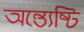
অন্ত্যেষ্টি